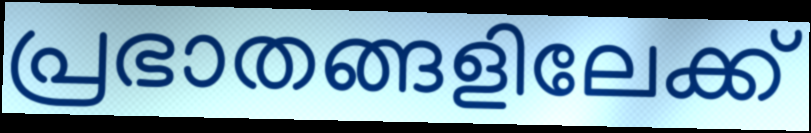
പ്രഭാതങ്ങളിലേക്ക്